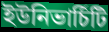
ইউনিভাৰ্চিটি